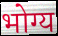
भोग्य